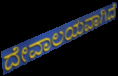
ದೇವಾಲಯವಾಗಿದೆ